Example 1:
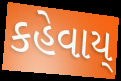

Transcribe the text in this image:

કહેવાય્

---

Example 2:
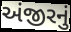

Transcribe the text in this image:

અંજીરનું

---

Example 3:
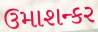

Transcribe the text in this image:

ઉમાશન્કર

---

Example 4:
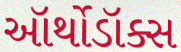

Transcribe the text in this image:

ઑર્થોડૉક્સ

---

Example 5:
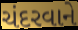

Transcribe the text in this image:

ચંદરવાને